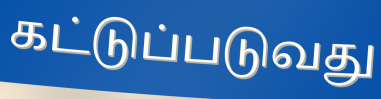
கட்டுப்படுவது